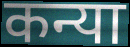
कन्या